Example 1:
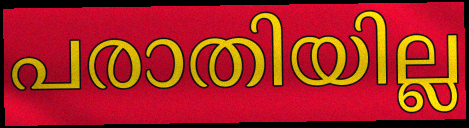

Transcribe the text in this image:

പരാതിയില്ല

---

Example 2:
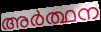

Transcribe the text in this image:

അർത്ഥന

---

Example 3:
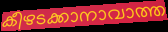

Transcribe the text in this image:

കീഴടക്കാനാവാത്ത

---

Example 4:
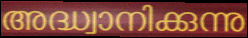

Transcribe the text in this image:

അദ്ധ്വാനിക്കുന്നു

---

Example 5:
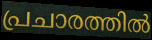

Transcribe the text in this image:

പ്രചാരത്തിൽ